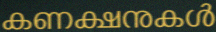
കണക്ഷനുകൾ